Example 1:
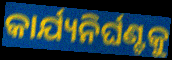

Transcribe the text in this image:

କାର୍ଯ୍ୟନିର୍ଘଣ୍ଟକୁ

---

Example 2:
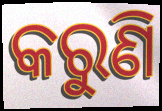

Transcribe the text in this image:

କରୁଣି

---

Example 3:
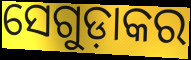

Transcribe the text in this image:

ସେଗୁଡ଼ାକର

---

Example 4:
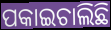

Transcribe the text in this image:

ପକାଇଚାଲିଛି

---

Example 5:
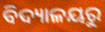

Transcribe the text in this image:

ବିଦ୍ୟାଳୟରୁ